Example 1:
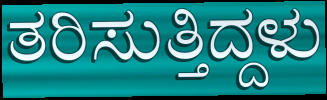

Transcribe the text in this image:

ತರಿಸುತ್ತಿದ್ದಳು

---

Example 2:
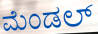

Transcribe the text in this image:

ಮೆಂಡಲ್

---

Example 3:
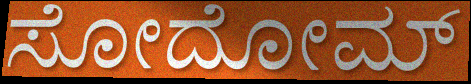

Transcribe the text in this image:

ಸೋದೋಮ್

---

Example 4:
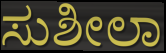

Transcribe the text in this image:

ಸುಶೀಲಾ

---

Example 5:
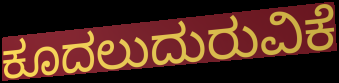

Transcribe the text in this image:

ಕೂದಲುದುರುವಿಕೆ